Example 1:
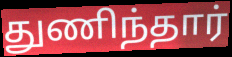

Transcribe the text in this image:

துணிந்தார்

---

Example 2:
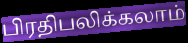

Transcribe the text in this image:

பிரதிபலிக்கலாம்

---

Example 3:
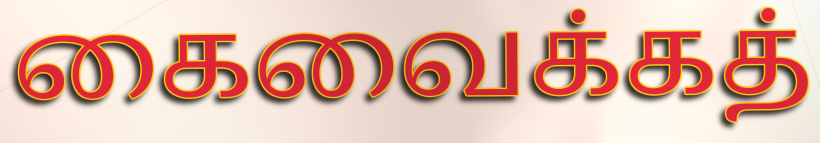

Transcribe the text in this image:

கைவைக்கத்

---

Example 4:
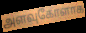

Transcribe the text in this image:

அளவுகோளாக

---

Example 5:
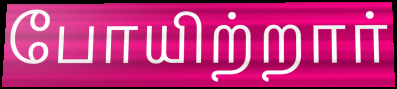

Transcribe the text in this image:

போயிற்றார்